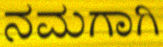
ನಮಗಾಗಿ